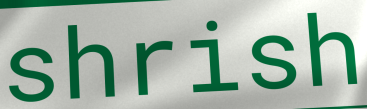
shrish